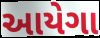
આયેગા